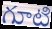
గూటి